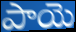
పాయె